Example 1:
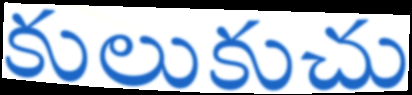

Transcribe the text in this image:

కులుకుచు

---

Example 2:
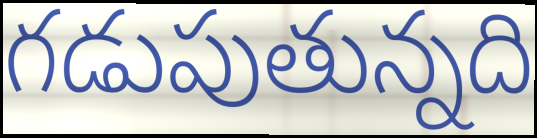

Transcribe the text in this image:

గడుపుతున్నది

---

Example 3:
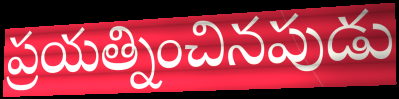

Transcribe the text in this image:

ప్రయత్నించినపుడు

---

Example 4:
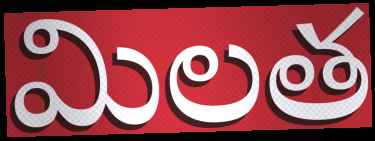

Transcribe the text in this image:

మిలత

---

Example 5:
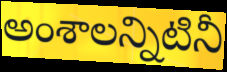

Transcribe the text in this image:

అంశాలన్నిటినీ